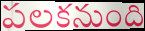
పలకనుంది